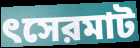
ৎসেরমাট